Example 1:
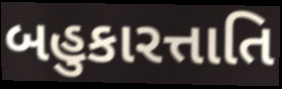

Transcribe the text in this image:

બહુકારત્તાતિ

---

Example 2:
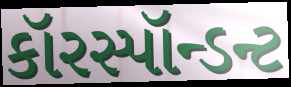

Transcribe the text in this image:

કૉરસ્પૉન્ડન્ટ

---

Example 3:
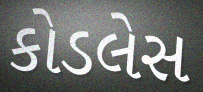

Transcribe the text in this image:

કોડલેસ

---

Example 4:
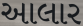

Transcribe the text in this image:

આલાર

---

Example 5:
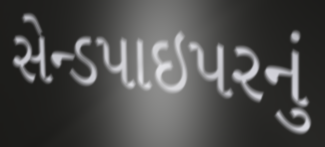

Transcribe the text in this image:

સેન્ડપાઇપરનું